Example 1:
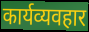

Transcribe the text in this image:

कार्यव्यवहार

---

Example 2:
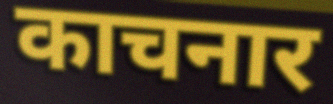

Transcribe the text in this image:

काचनार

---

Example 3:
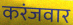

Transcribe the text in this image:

करंजवार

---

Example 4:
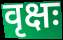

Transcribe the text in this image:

वृक्षः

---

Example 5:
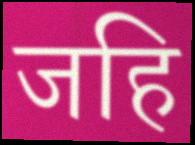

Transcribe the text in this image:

जहि